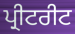
ਪ੍ਰੀਟਰੀਟ